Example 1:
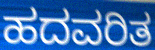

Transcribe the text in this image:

ಹದವರಿತ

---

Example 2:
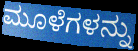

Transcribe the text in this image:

ಮೂಳೆಗಳನ್ನು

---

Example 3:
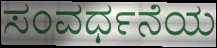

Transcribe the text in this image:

ಸಂವರ್ಧನೆಯ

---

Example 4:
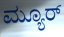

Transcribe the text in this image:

ಮ್ಯೂರ್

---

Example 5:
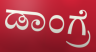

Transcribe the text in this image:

ಡಾಂಗ್ರೆ